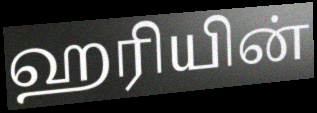
ஹரியின்